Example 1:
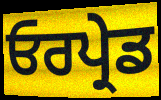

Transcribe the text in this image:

ਓਰਪ੍ਰੇਡ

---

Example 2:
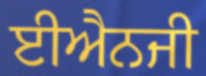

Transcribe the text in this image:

ਈਐਨਜੀ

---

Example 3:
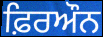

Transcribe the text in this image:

ਫ਼ਿਰਔਨ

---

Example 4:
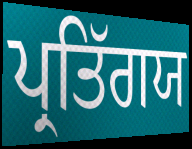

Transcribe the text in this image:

ਪ੍ਰਤਿੱਗਯ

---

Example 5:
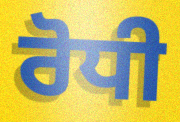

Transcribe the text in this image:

ਰੋਧੀ